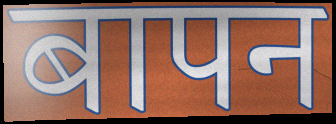
बापन